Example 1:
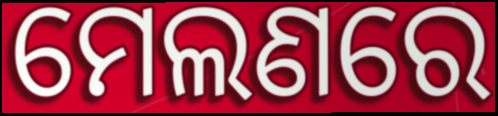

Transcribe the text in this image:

ମେଲଣରେ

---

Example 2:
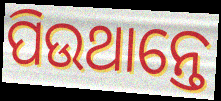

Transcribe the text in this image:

ପିଉଥାନ୍ତେ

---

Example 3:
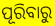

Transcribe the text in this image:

ପୂରିବାରୁ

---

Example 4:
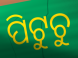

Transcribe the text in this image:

ପିଟୁଚୁ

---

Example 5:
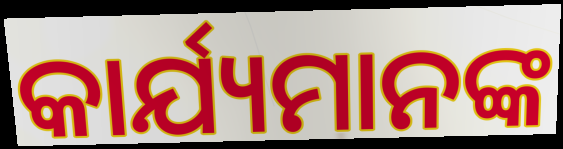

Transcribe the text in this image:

କାର୍ଯ୍ୟମାନଙ୍କ